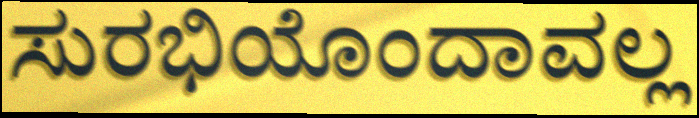
ಸುರಭಿಯೊಂದಾವಲ್ಲ